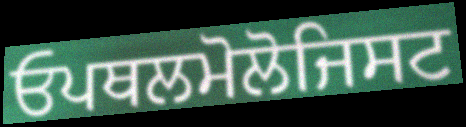
ਓਪਥਲਮੋਲੋਜਿਸਟ